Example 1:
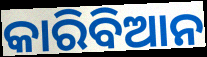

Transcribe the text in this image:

କାରିବିଆନ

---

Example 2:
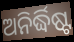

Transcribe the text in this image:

ଅନିର୍ଦ୍ଧିଷ୍ଟ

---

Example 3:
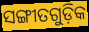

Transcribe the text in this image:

ସଙ୍ଗୀତଗୁଡ଼ିକ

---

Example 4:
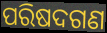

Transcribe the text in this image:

ପରିଷଦଗଣ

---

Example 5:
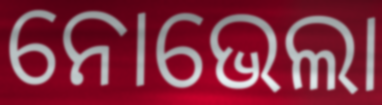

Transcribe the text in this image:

ନୋଭେଲା